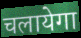
चलायेगा